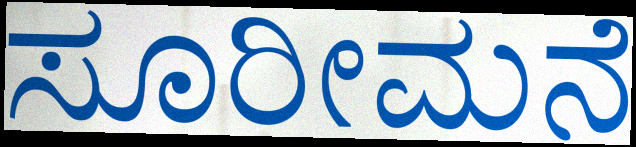
ಸೂರೀಮನೆ